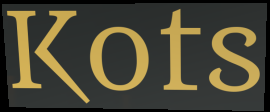
Kots